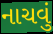
નાચવું